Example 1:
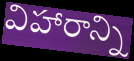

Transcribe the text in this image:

విహారాన్ని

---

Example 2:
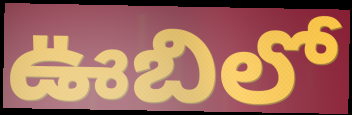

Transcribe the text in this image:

ఊబిలో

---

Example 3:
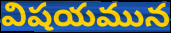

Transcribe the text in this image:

విషయమున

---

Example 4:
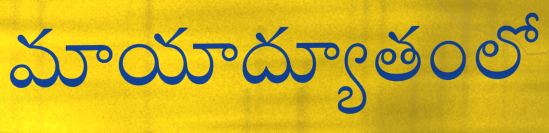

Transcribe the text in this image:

మాయాద్యూతంలో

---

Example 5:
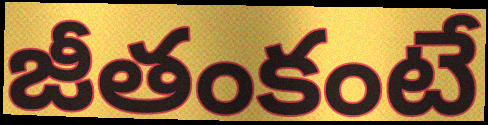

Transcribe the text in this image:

జీతంకంటే